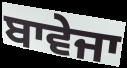
ਬਾਵੇਜਾ